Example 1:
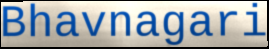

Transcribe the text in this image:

Bhavnagari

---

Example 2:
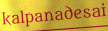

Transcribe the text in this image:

kalpanadesai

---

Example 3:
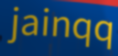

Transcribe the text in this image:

jainqq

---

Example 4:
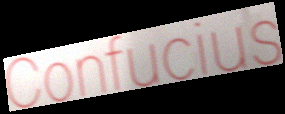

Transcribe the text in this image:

Confucius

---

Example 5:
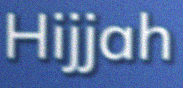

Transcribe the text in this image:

Hijjah